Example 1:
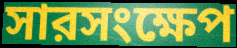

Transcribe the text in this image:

সারসংক্ষেপ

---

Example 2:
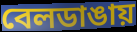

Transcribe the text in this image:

বেলডাঙায়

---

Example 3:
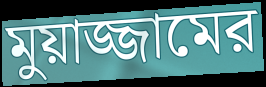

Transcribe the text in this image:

মুয়াজ্জামের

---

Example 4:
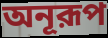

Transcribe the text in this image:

অনূরূপ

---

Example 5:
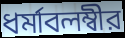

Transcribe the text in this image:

ধর্মাবলম্বীর